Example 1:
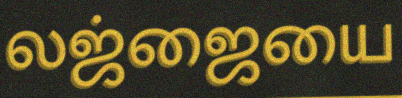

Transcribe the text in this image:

லஜ்ஜையை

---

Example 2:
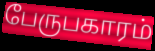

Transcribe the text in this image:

பேருபகாரம்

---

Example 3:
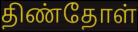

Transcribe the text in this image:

திண்தோள்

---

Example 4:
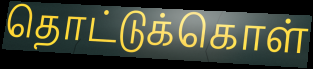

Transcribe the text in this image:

தொட்டுக்கொள்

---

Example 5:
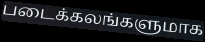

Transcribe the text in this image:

படைக்கலங்களுமாக